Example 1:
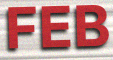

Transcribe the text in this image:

FEB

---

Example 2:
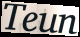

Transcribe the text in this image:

Teun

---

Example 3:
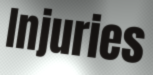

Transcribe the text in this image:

Injuries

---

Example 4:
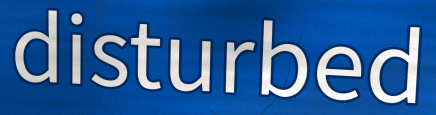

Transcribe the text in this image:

disturbed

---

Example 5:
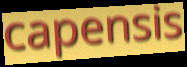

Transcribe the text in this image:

capensis